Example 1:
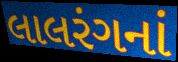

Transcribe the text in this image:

લાલરંગનાં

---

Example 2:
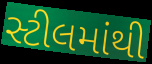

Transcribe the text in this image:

સ્ટીલમાંથી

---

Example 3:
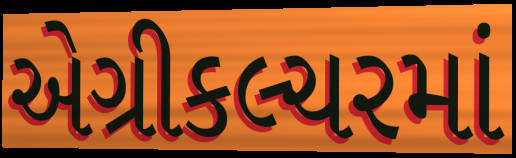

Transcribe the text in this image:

એગ્રીકલ્ચરમાં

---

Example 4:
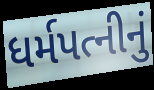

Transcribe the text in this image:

ધર્મપત્નીનું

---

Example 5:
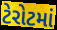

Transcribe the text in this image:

ટેરોટમાં